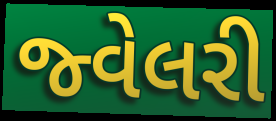
જ્વેલરી